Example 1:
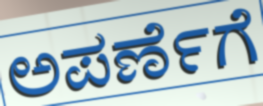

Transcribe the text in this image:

ಅಪರ್ಣೆಗೆ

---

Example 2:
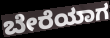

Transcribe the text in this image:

ಬೇರೆಯಾಗ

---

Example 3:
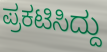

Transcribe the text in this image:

ಪ್ರಕಟಿಸಿದ್ದು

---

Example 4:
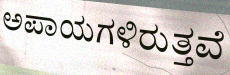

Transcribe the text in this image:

ಅಪಾಯಗಳಿರುತ್ತವೆ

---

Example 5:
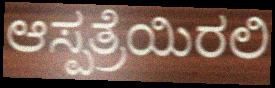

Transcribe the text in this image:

ಆಸ್ಪತ್ರೆಯಿರಲಿ